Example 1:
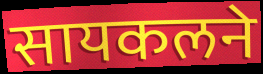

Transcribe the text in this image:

सायकलने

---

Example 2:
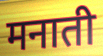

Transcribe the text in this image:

मनाती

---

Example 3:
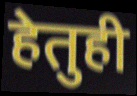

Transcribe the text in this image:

हेतुही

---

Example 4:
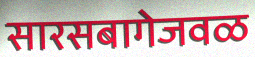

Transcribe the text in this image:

सारसबागेजवळ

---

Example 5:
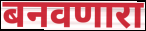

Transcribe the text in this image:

बनवणारा